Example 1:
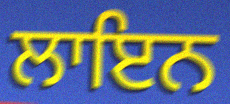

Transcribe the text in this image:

ਲਾਇਨ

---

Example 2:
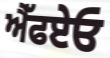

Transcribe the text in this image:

ਐੱਫਏਓ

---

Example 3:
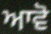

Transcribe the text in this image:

ਆਵੋ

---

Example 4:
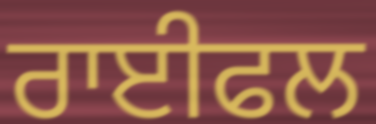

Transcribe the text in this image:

ਰਾਈਫਲ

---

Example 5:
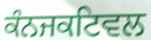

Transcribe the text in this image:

ਕੰਨਜਕਟਿਵਲ